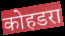
कोहडरा